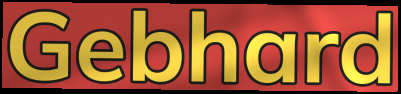
Gebhard